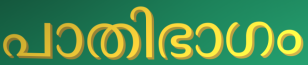
പാതിഭാഗം